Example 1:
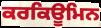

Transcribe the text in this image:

ਕਰਕਿਊਮਿਨ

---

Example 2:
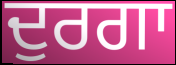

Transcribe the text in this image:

ਦੁਰਗਾ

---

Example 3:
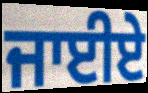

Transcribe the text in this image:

ਜਾਈਏ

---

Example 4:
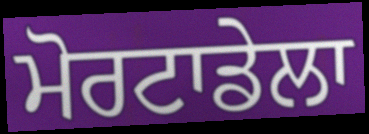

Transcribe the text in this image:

ਮੋਰਟਾਡੇਲਾ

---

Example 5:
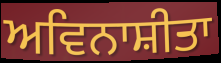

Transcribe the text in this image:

ਅਵਿਨਾਸ਼ੀਤਾ